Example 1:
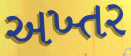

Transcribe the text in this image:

અખ્તર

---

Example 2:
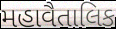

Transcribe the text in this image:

મહાવૈતાલિક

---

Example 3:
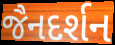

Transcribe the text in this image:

જૈનદર્શન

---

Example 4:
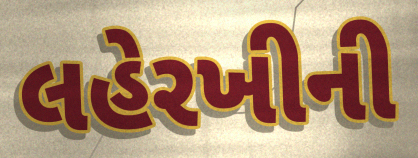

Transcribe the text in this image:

લહેરખીની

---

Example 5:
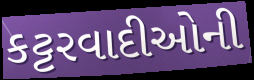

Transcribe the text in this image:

કટ્ટરવાદીઓની